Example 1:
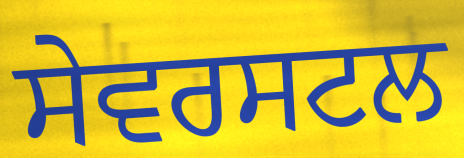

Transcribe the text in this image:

ਸੇਵਰਸਟਲ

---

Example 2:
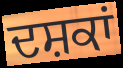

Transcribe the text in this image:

ਦਸ਼ਕਾਂ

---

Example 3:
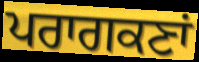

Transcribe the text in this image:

ਪਰਾਗਕਣਾਂ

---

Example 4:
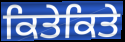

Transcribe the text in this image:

ਕਿਤੇਕਿਤੇ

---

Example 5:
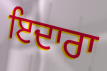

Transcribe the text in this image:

ਇਦਾਰਾ